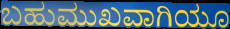
ಬಹುಮುಖವಾಗಿಯೂ